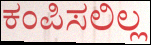
ಕಂಪಿಸಲಿಲ್ಲ